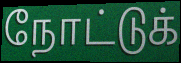
நோட்டுக்